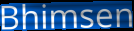
Bhimsen